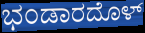
ಭಂಡಾರದೊಳ್